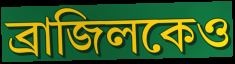
ব্রাজিলকেও